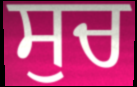
ਸੁਚ